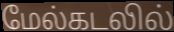
மேல்கடலில்